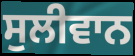
ਸੁਲੀਵਾਨ